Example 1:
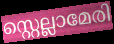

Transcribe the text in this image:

സ്റ്റെല്ലാമേരി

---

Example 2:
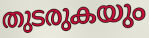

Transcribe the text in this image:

തുടരുകയും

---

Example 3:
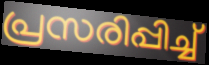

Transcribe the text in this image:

പ്രസരിപ്പിച്ച്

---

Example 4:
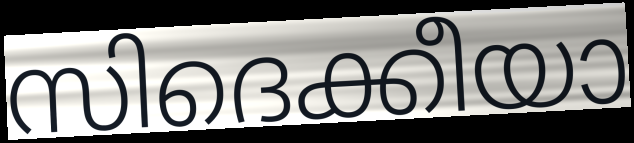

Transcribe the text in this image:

സിദെക്കീയാ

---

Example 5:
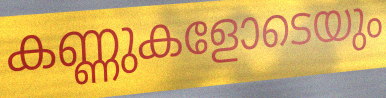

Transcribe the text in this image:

കണ്ണുകളോടെയും